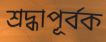
শ্রদ্ধাপূর্বক